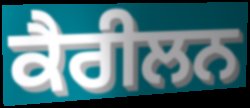
ਕੈਰੀਲਨ